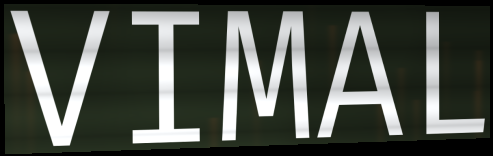
VIMAL